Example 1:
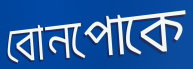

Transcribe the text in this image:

বোনপোকে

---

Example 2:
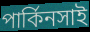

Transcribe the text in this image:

পার্কিনসাই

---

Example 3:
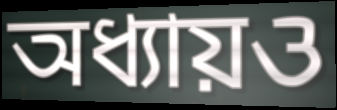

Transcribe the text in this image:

অধ্যায়ও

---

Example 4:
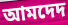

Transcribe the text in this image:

আমদেদ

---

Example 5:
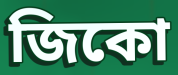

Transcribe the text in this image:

জিকো